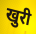
खुरी